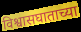
विश्वासघाताच्या